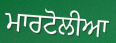
ਮਾਰਟੋਲੀਆ